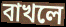
বাখলে